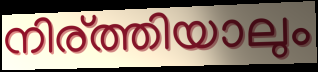
നിര്ത്തിയാലും